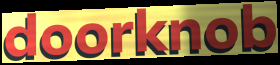
doorknob